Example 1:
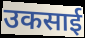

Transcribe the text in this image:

उकसाई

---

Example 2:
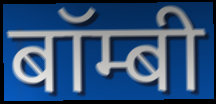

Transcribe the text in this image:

बॉम्बी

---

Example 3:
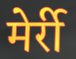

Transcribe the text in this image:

मेर्री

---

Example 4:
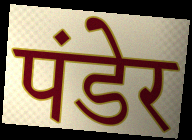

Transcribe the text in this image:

पंडेर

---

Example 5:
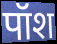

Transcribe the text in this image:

पॉश